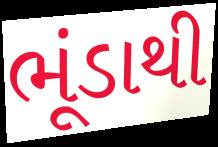
ભૂંડાથી